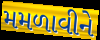
મમળાવીને